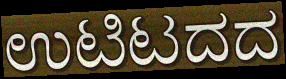
ಉಟಿಟದದ